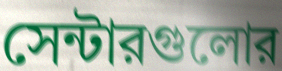
সেন্টারগুলোর